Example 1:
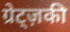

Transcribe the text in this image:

ग्रेट्ज़की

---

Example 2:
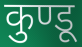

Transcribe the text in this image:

कुण्डू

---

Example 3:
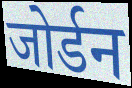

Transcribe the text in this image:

जोर्डन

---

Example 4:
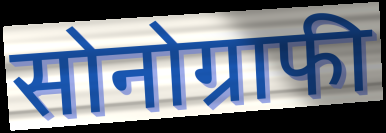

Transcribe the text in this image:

सोनोग्राफी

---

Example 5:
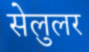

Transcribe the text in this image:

सेलुलर